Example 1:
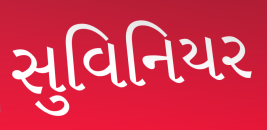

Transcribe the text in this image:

સુવિનિયર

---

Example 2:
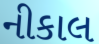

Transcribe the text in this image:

નીકાલ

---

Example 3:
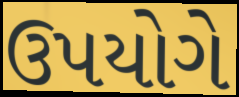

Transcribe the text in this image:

ઉપયોગે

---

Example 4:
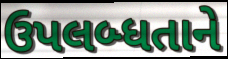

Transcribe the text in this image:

ઉપલબ્ધતાને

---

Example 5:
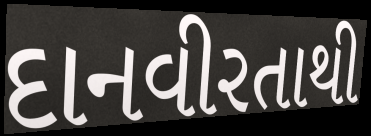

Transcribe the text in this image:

દાનવીરતાથી